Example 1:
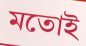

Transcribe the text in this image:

মতোই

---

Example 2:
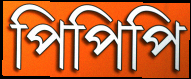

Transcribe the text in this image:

পিপিপি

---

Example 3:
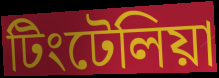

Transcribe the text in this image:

টিংটেলিয়া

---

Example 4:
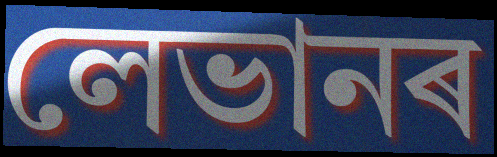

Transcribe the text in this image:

লেভানৰ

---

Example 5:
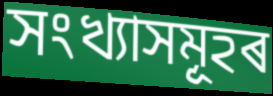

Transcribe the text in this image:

সংখ্যাসমূহৰ